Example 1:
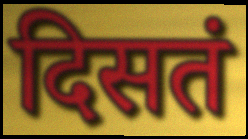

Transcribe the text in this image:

दिसतं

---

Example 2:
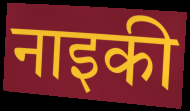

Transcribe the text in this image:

नाइकी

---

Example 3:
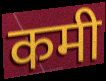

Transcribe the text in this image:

कमी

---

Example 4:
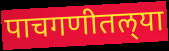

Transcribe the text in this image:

पाचगणीतल्या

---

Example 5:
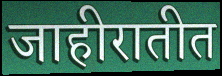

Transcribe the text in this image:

जाहीरातीत